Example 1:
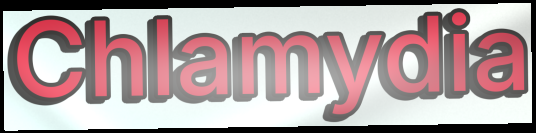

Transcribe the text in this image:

Chlamydia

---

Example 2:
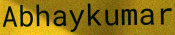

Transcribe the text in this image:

Abhaykumar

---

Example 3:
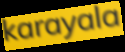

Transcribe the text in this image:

karayala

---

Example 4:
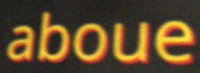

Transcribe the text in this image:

aboue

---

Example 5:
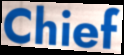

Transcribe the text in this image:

Chief